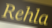
Rehla